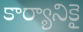
కార్యానికై